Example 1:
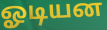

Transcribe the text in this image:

ஓடியன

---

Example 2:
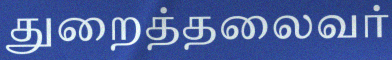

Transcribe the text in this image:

துறைத்தலைவர்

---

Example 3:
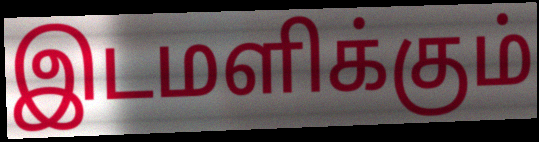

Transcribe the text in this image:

இடமளிக்கும்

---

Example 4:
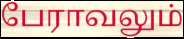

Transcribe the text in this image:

பேராவலும்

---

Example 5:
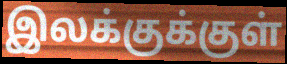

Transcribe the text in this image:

இலக்குக்குள்